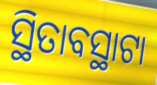
ସ୍ଥିତାବସ୍ଥାଟା